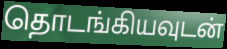
தொடங்கியவுடன்